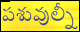
పశువుల్నీ